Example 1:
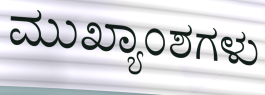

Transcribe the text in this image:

ಮುಖ್ಯಾಂಶಗಳು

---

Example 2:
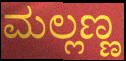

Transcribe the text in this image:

ಮಲ್ಲಣ್ಣ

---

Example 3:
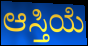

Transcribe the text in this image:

ಆಸ್ತಿಯೆ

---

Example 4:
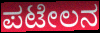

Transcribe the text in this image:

ಪಟೇಲನ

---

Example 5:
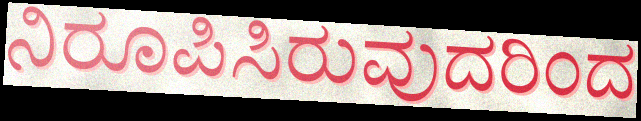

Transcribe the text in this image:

ನಿರೂಪಿಸಿರುವುದರಿಂದ